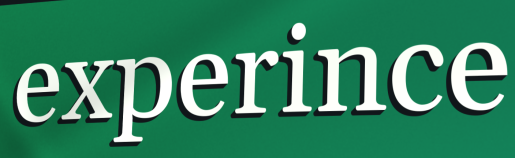
experince